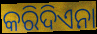
କରିଦିଏନା